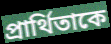
প্রার্থিতাকে